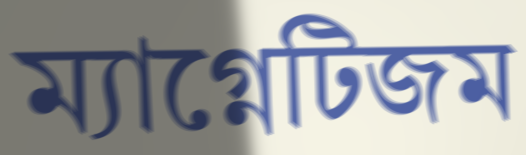
ম্যাগ্নেটিজম